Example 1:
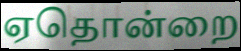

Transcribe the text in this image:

ஏதொன்றை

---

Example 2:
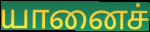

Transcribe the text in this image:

யானைச்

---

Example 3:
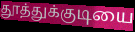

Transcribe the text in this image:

தூத்துக்குடியை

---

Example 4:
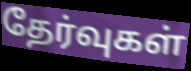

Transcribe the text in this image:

தேர்வுகள்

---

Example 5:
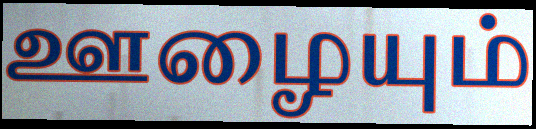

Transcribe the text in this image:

ஊழையும்